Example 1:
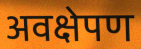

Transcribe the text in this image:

अवक्षेपण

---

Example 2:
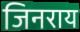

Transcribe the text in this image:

जिनराय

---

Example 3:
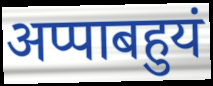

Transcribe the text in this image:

अप्पाबहुयं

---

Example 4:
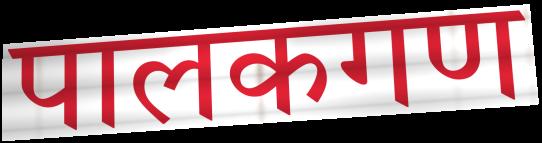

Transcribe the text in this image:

पालकगण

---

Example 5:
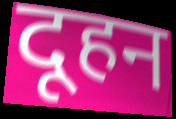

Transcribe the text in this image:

दूहन